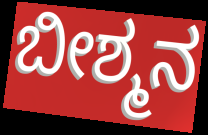
ಬೀಶ್ಮನ